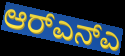
ಆರ್‌ಎನ್ಎ